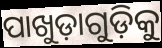
ପାଖୁଡ଼ାଗୁଡ଼ିକୁ